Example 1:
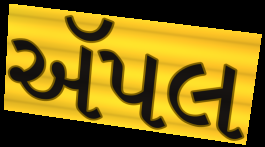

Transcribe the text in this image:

ઍપલ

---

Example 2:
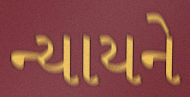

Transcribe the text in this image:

ન્યાયને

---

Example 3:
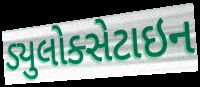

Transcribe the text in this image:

ડ્યુલોક્સેટાઇન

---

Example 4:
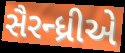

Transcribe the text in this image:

સૈરન્ધ્રીએ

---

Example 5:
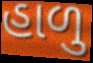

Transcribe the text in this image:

હાળુ